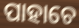
ପାହାଚେ